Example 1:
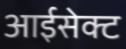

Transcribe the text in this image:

आईसेक्ट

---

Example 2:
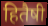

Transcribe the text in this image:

हितैषी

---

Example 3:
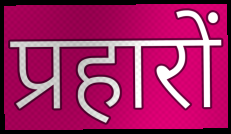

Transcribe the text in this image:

प्रहारों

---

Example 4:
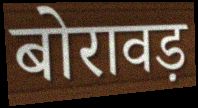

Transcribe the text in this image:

बोरावड़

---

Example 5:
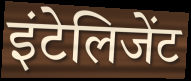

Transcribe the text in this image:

इंटेलिजेंट